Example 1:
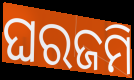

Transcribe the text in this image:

ଘରଜମି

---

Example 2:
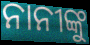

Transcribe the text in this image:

ନାନୀଙ୍କୁ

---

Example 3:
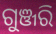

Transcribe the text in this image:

ଗୁଞ୍ଜରି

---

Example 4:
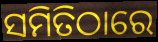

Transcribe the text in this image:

ସମିତିଠାରେ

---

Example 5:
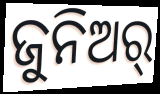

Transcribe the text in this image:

ଜୁନିଅର୍